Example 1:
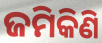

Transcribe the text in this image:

ଜମିକିଣି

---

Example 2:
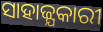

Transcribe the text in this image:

ସାହାଜ୍ଯକାରୀ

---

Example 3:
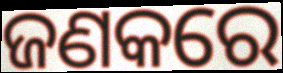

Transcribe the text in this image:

ଜଣକରେ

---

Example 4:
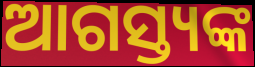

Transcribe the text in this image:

ଆଗସ୍ତ୍ୟଙ୍କ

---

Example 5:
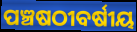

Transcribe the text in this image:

ପଞ୍ଚଷଠୀବର୍ଷୀୟ